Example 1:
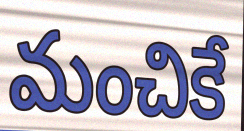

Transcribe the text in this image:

మంచికే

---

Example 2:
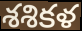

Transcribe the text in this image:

శశికళ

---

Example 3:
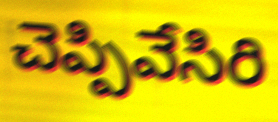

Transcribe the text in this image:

చెప్పివేసిరి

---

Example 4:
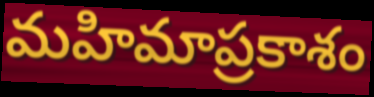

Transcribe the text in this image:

మహిమాప్రకాశం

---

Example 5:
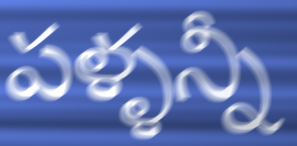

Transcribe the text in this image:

పళ్ళన్నీ